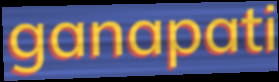
ganapati